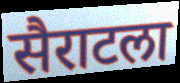
सैराटला